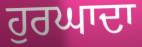
ਹੁਰਘਾਦਾ